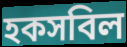
হকসবিল